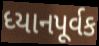
ધ્યાનપૂર્વક